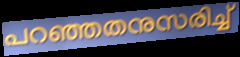
പറഞ്ഞതനുസരിച്ച്